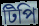
টিপি